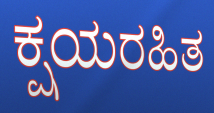
ಕ್ಷಯರಹಿತ